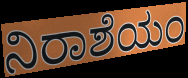
ನಿರಾಶೆಯಂ